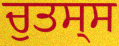
ਚੁਤਸ੍ਸ